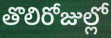
తొలిరోజుల్లో